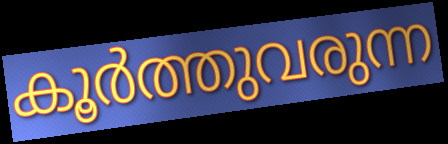
കൂർത്തുവരുന്ന